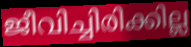
ജീവിച്ചിരിക്കില്ല